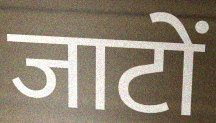
जाटों